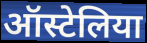
ऑस्टेलिया